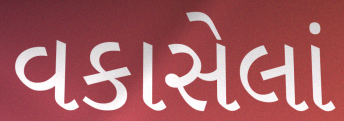
વકાસેલાં